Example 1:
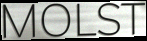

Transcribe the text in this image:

MOLST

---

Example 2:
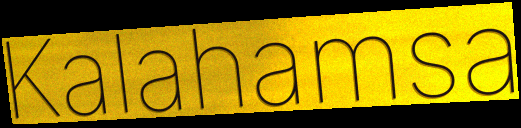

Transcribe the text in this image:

Kalahamsa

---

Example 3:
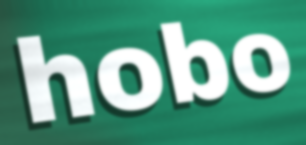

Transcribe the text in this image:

hobo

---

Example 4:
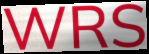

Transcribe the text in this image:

WRS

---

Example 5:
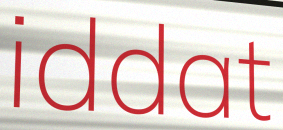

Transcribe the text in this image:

iddat